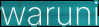
waruni